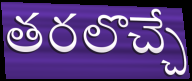
తరలొచ్చే